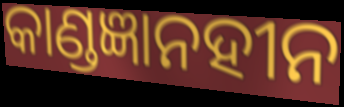
କାଣ୍ଡଜ୍ଞାନହୀନ